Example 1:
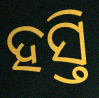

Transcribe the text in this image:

ହସ୍ତି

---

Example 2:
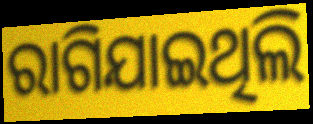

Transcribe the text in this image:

ରାଗିଯାଇଥିଲି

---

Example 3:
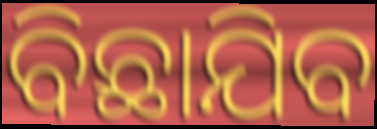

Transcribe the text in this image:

ବିଛାଯିବ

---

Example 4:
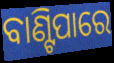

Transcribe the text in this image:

ବାଣ୍ଟିପାରେ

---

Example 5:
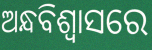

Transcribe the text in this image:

ଅନ୍ଧବିଶ୍ବାସରେ